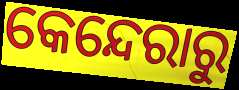
କେନ୍ଦେରାରୁ